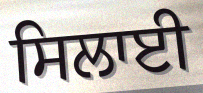
ਸਿਲਾਈ